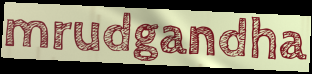
mrudgandha